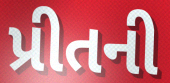
પ્રીતની